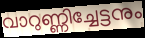
വാറുണ്ണിച്ചേട്ടനും